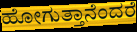
ಹೋಗುತ್ತಾನೆಂದರೆ